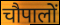
चौपालों